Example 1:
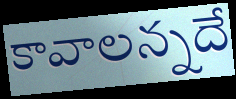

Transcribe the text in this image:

కావాలన్నదే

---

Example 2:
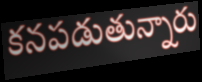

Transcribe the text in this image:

కనపడుతున్నారు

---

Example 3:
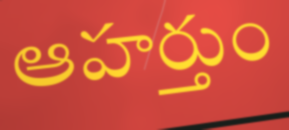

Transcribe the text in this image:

ఆహర్తుం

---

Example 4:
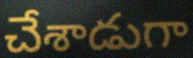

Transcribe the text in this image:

చేశాడుగా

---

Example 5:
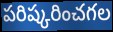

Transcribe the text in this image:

పరిష్కరించగల